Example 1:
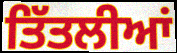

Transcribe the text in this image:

ਤਿੱਤਲੀਆਂ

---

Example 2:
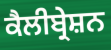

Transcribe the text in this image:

ਕੈਲੀਬ੍ਰੇਸ਼ਨ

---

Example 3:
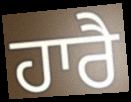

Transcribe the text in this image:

ਹਾਰੈ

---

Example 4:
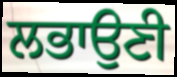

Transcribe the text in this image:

ਲਭਾਉਣੀ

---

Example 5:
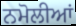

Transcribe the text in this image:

ਨਮੋਲੀਆਂ